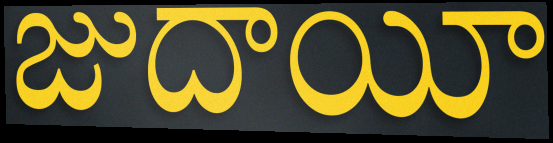
జుదాయీ